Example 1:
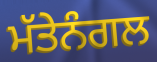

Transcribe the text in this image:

ਮੱਤੇਨੰਗਲ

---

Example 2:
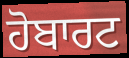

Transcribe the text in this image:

ਹੋਬਾਰਟ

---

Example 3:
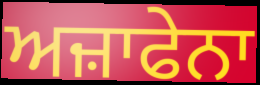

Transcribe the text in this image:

ਅਜ਼ਾਫੇਨਾ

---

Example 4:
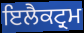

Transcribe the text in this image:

ਇਲੈਕਟ੍ਰਮ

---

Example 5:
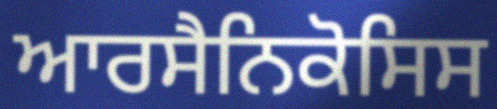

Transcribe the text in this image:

ਆਰਸੈਨਿਕੋਸਿਸ